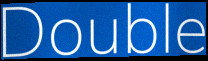
Double